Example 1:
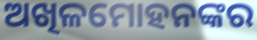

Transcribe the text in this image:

ଅଖିଳମୋହନଙ୍କର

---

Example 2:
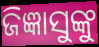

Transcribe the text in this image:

ଜିଜ୍ଞାସୁଙ୍କୁ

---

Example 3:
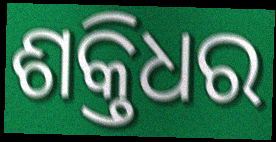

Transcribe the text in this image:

ଶକ୍ତିଧର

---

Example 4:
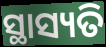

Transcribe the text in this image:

ସ୍ଥାସ୍ୟତି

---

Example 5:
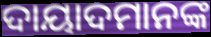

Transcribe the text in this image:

ଦାୟାଦମାନଙ୍କ